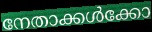
നേതാക്കൾക്കോ